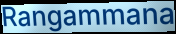
Rangammana